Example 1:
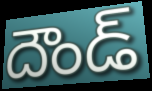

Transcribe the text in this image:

దౌండ్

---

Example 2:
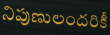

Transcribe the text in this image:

నిపుణులందరికీ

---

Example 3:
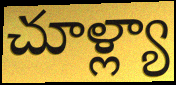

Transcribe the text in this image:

చూళ్ల్యా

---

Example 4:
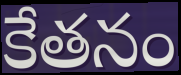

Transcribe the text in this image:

కేతనం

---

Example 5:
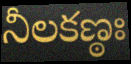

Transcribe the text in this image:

నీలకణ్ఠః